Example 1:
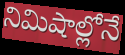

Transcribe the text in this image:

నిమిషాల్లోనే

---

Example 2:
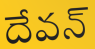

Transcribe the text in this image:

దేవన్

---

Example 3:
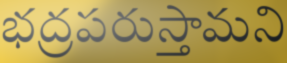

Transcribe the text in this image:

భద్రపరుస్తామని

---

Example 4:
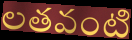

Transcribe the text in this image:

లతవంటి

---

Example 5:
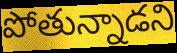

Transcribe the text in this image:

పోతున్నాడని